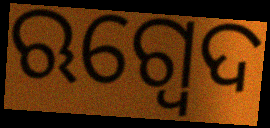
ଋଗ୍ବେଦ